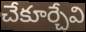
చేకూర్చేవి